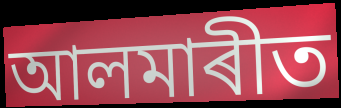
আলমাৰীত